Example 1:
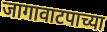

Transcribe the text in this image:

जागावाटपाच्या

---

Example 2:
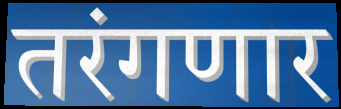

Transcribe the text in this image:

तरंगणार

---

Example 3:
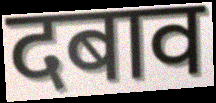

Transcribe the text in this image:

दबाव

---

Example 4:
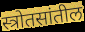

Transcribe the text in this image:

स्त्रोतसांतील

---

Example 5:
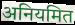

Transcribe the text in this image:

अनियमित